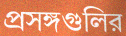
প্রসঙ্গগুলির